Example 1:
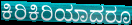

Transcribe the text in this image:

ಕಿರಿಕಿರಿಯಾದರೂ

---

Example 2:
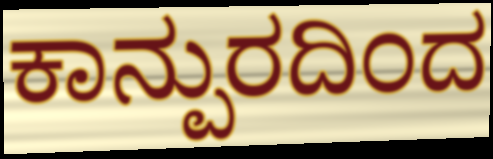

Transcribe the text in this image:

ಕಾನ್ಪುರದಿಂದ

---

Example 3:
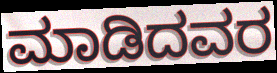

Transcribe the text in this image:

ಮಾಡಿದವರ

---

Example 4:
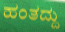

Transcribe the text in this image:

ಹಂತದ್ದು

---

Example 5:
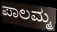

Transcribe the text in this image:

ಪಾಲಮ್ಮ